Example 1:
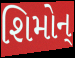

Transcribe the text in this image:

શિમોન્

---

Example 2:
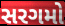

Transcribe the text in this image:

સરગમો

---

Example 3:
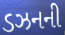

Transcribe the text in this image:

ડઝનની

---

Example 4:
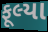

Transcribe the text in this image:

ફૂલ્યા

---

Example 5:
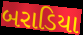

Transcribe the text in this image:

બરાડિયા